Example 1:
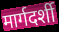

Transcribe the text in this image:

मार्गदर्शी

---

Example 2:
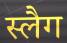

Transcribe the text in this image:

स्लैग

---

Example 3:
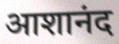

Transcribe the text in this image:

आशानंद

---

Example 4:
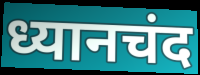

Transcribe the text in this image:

ध्यानचंद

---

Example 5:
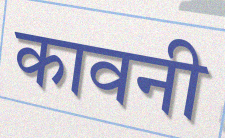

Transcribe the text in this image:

कावनी